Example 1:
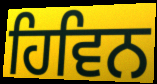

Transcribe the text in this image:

ਹਿਵਿਨ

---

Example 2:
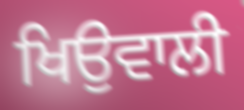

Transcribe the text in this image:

ਖਿਉਵਾਲੀ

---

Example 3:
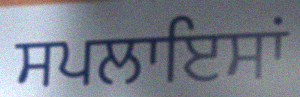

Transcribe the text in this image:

ਸਪਲਾਇਸਾਂ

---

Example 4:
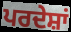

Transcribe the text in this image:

ਪਰਦੇਸ਼ਾਂ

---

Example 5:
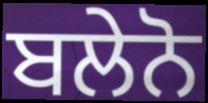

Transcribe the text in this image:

ਬਲੇਨੋ